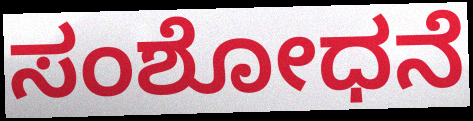
ಸಂಶೋಧನೆ